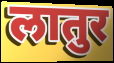
लातुर